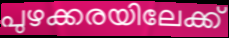
പുഴക്കരയിലേക്ക്